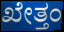
ಖೇತ್ತಂ